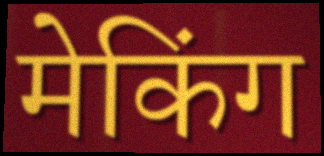
मेकिंग